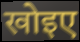
खोइए